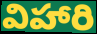
విహారి